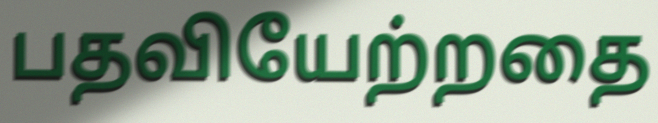
பதவியேற்றதை